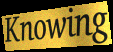
Knowing